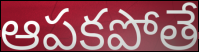
ఆపకపోతే